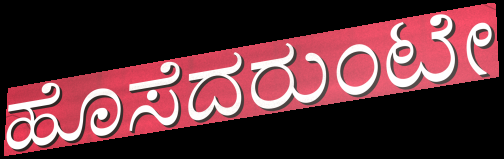
ಹೊಸೆದರುಂಟೇ